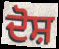
ਦੋਸ਼